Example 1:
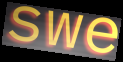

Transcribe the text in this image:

swe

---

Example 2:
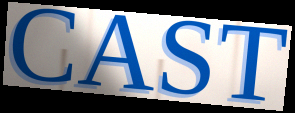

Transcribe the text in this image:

CAST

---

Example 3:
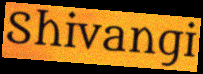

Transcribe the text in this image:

Shivangi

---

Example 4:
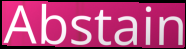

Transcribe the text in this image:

Abstain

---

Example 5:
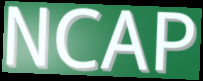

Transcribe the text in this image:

NCAP